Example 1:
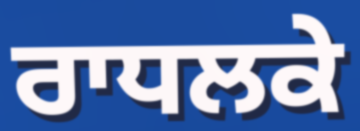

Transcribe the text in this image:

ਰਾਧਲਕੇ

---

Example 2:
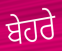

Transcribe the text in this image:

ਬੇਹਰੇ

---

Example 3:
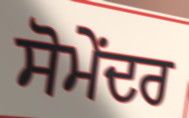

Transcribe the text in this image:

ਸੋਮੇਂਦਰ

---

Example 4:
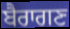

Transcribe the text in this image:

ਬੈਰਾਗਣ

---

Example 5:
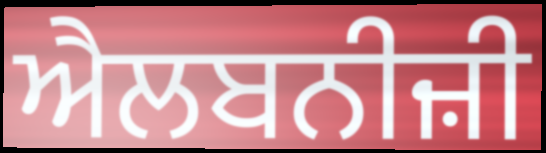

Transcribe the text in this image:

ਐਲਬਨੀਜ਼ੀ